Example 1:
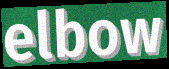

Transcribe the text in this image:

elbow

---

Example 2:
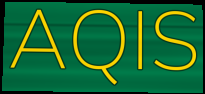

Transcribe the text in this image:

AQIS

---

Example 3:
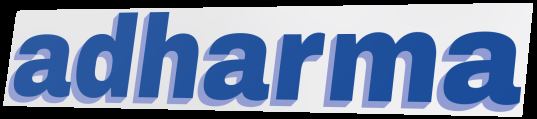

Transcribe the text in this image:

adharma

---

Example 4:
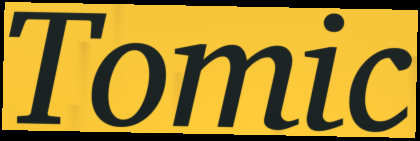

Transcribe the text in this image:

Tomic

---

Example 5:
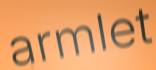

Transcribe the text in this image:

armlet